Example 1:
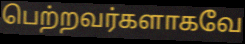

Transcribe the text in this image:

பெற்றவர்களாகவே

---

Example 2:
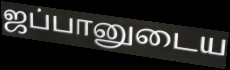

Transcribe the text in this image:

ஜப்பானுடைய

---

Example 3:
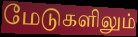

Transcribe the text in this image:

மேடுகளிலும்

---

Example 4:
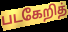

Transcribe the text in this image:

படகேறித்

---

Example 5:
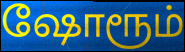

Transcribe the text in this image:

ஷோரூம்